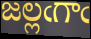
జల్లఁగాఁ